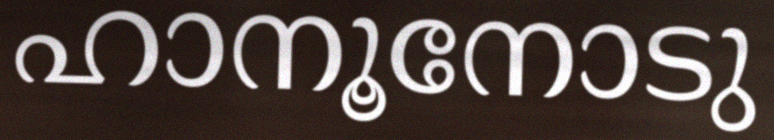
ഹാനൂനോടു